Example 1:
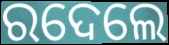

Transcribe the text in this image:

ରଦେଲେ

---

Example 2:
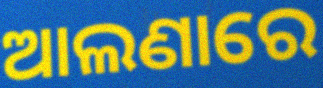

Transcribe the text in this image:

ଆଲଣାରେ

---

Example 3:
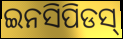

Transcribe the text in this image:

ଇନସିପିଡସ୍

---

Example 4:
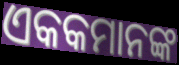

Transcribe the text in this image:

ଏକକମାନଙ୍କ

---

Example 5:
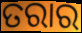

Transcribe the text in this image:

ତରାର